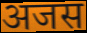
अजस